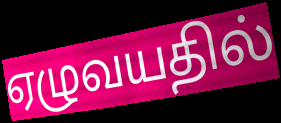
ஏழுவயதில்